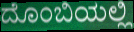
ದೊಂಬಿಯಲ್ಲಿ